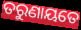
ତରୁଣାୟତେ